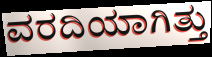
ವರದಿಯಾಗಿತ್ತು